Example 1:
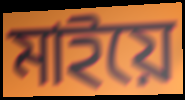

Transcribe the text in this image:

মাইয়ে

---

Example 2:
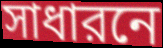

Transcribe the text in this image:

সাধারনে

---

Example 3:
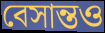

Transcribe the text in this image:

বেসান্তও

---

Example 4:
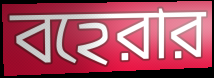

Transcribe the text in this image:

বহেরার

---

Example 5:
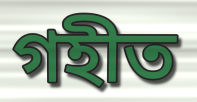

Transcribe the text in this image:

গহীত